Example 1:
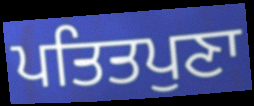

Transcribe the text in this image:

ਪਤਿਤਪੁਣਾ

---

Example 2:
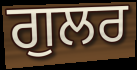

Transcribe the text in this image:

ਗੁਲਰ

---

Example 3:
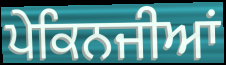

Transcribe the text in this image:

ਪੇਕਿਨਜੀਆਂ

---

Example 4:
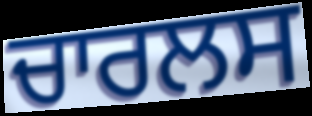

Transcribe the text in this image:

ਚਾਰਲਸ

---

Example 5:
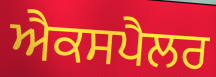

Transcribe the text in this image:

ਐਕਸਪੈਲਰ